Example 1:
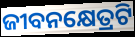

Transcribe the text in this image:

ଜୀବନକ୍ଷେତ୍ରଟି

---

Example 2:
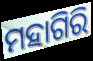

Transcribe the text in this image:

ମହାଗିରି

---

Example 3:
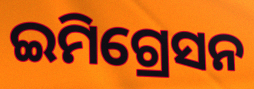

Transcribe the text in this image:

ଇମିଗ୍ରେସନ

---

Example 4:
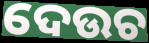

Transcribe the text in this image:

ଦେଉଚ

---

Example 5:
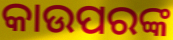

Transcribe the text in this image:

କାଉପରଙ୍କ